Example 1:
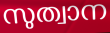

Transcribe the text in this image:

സുത്വാന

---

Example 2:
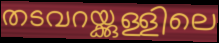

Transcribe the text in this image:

തടവറയ്ക്കുള്ളിലെ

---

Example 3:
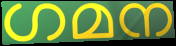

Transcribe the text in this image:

ഗമന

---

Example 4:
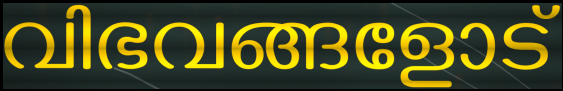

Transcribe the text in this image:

വിഭവങ്ങളോട്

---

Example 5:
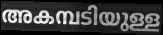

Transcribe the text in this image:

അകമ്പടിയുള്ള